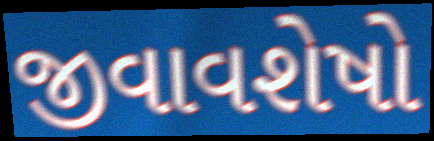
જીવાવશેષો